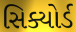
સિક્યોર્ડ